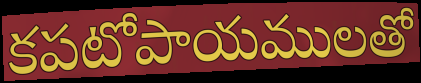
కపటోపాయములతో